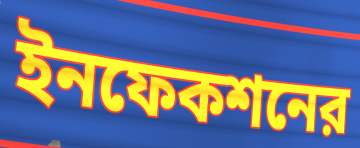
ইনফেকশনের